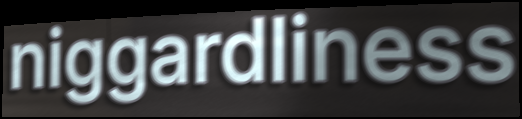
niggardliness